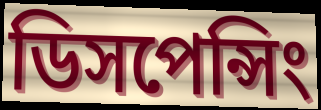
ডিসপেন্সিং